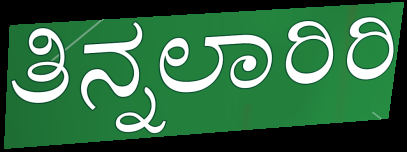
ತಿನ್ನಲಾರಿರಿ